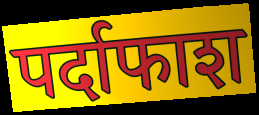
पर्दाफाश